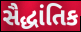
સૈદ્ધાંતિક